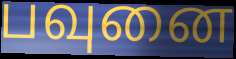
பவுனை